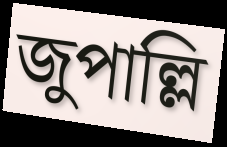
জুপাল্লি